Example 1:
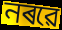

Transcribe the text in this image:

নৰৱে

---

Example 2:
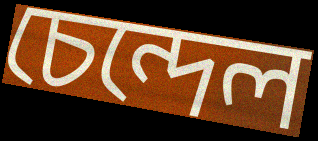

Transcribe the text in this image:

চেন্দেল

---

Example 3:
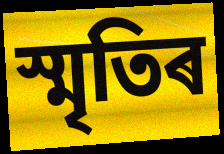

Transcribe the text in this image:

স্মৃতিৰ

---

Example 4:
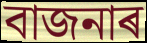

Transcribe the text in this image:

বাজনাৰ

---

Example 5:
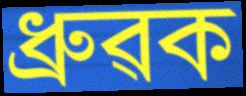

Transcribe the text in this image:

ধ্ৰুৱক